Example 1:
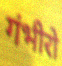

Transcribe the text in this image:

गंभीरो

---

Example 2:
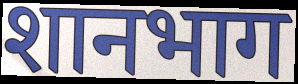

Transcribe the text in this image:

शानभाग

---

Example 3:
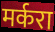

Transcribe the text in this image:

मर्करा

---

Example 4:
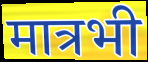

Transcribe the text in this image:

मात्रभी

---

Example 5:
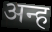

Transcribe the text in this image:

अन्ह